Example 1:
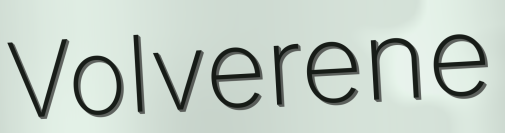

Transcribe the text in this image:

Volverene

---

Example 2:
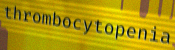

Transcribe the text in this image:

thrombocytopenia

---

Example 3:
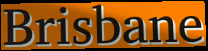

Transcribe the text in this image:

Brisbane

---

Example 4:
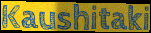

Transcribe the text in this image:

Kaushitaki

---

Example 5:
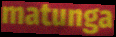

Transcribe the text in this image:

matunga